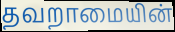
தவறாமையின்